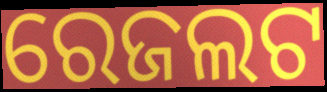
ରେଜଲଟ